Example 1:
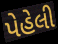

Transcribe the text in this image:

પેહેલી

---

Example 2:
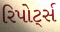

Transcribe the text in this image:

રિપોર્ટ્સ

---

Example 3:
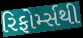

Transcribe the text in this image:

રિફોર્મ્સથી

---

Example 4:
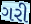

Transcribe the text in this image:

ગરી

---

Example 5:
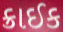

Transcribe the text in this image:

ક્રાઈક